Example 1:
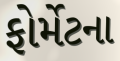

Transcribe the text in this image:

ફોર્મેટના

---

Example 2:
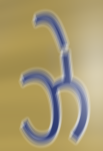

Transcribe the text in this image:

ઝે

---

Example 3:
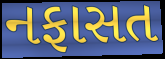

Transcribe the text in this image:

નફાસત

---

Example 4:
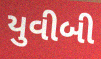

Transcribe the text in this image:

યુવીબી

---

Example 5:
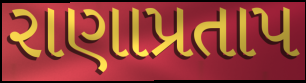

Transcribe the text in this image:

રાણાપ્રતાપ